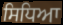
ਸਿਧਿਆ